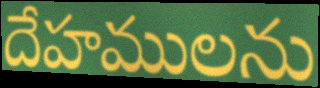
దేహములను